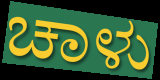
ಚಾಳು